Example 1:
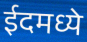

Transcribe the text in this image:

ईदमध्ये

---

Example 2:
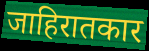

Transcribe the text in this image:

जाहिरातकार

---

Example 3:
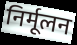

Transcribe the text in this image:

निर्मूलन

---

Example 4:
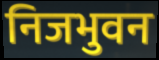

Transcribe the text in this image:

निजभुवन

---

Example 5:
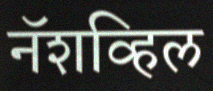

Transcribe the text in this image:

नॅशव्हिल